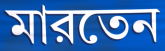
মারতেন